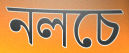
নলচে